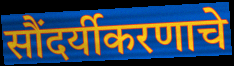
सौंदर्यीकरणाचे